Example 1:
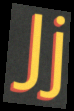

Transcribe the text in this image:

Jj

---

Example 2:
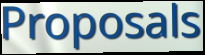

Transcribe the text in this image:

Proposals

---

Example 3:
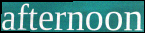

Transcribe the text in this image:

afternoon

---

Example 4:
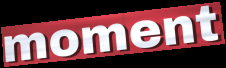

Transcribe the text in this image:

moment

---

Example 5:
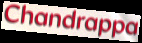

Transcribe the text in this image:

Chandrappa